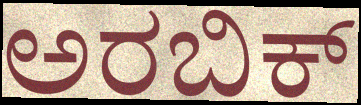
ಅರಬಿಕ್